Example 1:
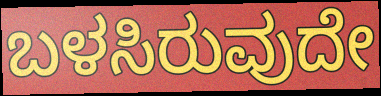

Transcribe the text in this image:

ಬಳಸಿರುವುದೇ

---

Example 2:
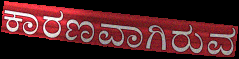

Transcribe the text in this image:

ಕಾರಣವಾಗಿರುವ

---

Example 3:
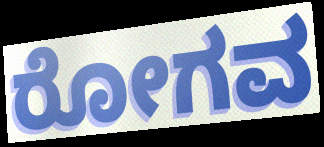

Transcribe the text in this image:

ರೋಗವ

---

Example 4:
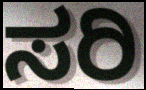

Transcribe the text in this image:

ಸರಿ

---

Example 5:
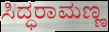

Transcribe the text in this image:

ಸಿದ್ಧರಾಮಣ್ಣ